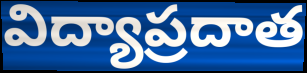
విద్యాప్రదాత